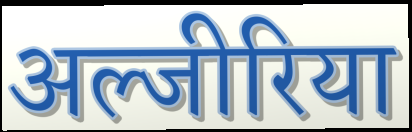
अल्जीरिया